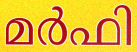
മർഫി